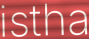
istha